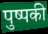
पुष्पकी